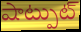
షాట్పుట్